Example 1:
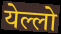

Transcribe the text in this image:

येल्लो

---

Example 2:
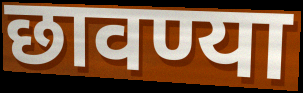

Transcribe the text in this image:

छावण्या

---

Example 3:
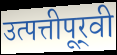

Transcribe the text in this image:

उत्पत्तीपूर्वी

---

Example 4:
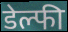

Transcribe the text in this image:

डेल्फी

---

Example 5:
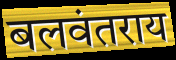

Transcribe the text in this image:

बलवंतराय